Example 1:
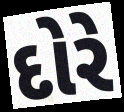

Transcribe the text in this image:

દોરે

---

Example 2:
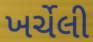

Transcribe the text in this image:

ખર્ચેલી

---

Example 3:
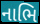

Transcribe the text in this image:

નાભિ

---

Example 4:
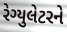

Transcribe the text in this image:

રેગ્યુલેટરને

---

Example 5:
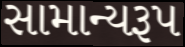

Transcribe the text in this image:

સામાન્યરૂપ